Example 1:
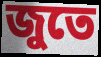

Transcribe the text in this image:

জুতে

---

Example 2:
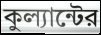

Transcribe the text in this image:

কুল্যান্টের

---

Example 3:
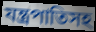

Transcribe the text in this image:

যন্ত্রপাতিসহ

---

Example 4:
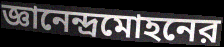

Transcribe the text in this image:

জ্ঞানেন্দ্রমোহনের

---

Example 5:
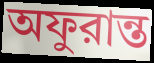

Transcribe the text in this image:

অফুরান্ত